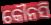
କୌନସି